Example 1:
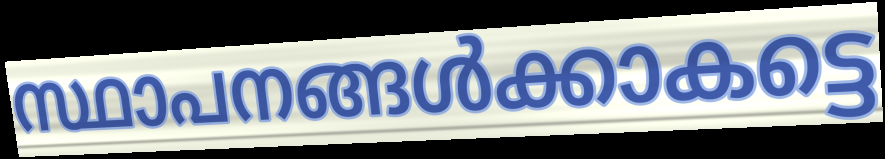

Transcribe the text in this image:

സ്ഥാപനങ്ങൾക്കാകട്ടെ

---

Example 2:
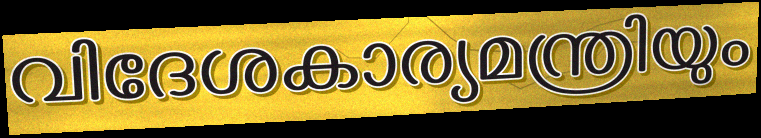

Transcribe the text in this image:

വിദേശകാര്യമന്ത്രിയും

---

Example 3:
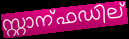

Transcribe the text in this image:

സ്റ്റാന്ഫഡില്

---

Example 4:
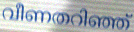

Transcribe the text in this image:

വീണതറിഞ്ഞ്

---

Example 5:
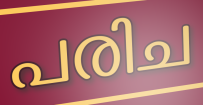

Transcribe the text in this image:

പരിച